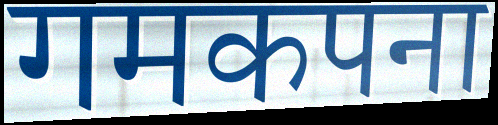
गमकपना